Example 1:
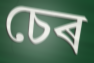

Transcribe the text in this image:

চেৰ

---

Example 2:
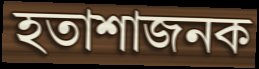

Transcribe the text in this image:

হতাশাজনক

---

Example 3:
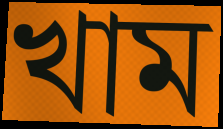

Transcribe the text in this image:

খাম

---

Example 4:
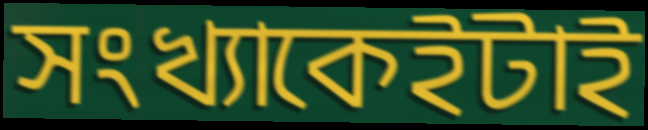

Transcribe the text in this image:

সংখ্যাকেইটাই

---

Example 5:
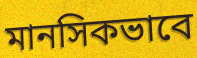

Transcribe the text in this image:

মানসিকভাবে